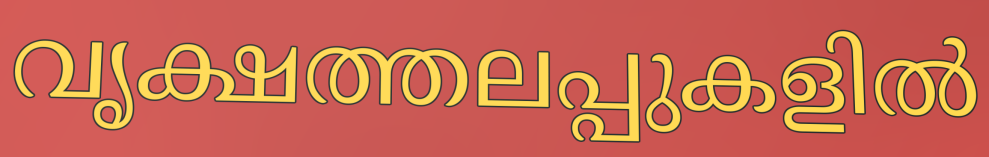
വൃക്ഷത്തലപ്പുകളിൽ